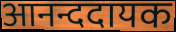
आनन्ददायक